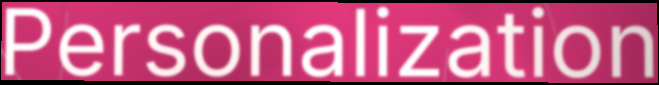
Personalization